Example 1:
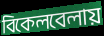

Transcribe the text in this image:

বিকেলবেলায়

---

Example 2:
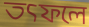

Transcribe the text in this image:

তৎফলে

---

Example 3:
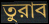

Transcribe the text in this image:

তুরাব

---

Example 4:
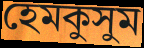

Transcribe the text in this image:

হেমকুসুম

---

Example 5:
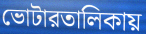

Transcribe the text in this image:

ভোটারতালিকায়